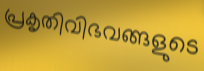
പ്രകൃതിവിഭവങ്ങളുടെ